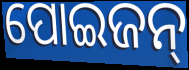
ପୋଇଜନ୍